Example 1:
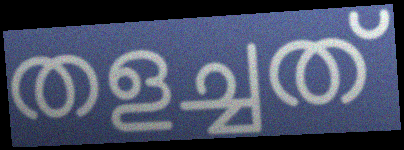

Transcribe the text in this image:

തളച്ചത്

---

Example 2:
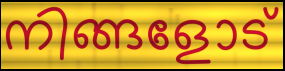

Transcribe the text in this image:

നിങ്ങളോട്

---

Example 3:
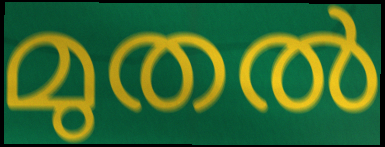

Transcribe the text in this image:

മുതൽ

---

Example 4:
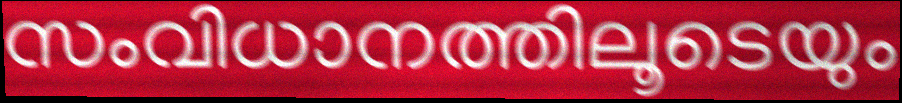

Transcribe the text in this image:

സംവിധാനത്തിലൂടെയും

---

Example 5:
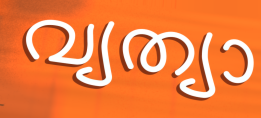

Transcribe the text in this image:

വ്യത്യാ